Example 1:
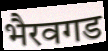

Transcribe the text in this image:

भैरवगड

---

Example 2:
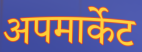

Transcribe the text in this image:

अपमार्केट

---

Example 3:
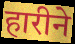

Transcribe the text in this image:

हारीने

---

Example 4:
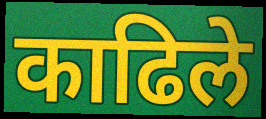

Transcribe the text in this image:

काढिले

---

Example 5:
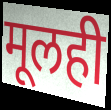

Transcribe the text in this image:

मूलही